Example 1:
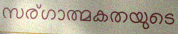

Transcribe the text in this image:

സര്ഗാത്മകതയുടെ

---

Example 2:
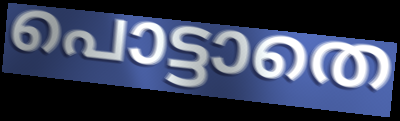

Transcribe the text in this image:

പൊട്ടാതെ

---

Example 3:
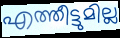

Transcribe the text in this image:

എത്തീട്ടുമില്ല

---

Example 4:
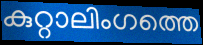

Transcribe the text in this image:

കുറ്റാലിംഗത്തെ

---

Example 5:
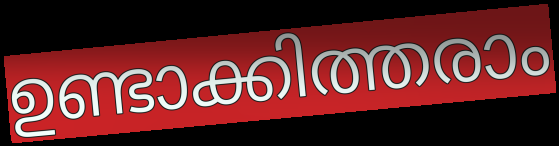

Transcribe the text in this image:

ഉണ്ടാക്കിത്തരാം